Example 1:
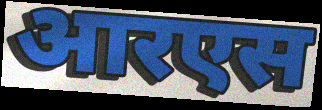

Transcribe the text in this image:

आरएस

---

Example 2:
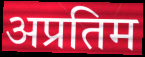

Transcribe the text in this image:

अप्रतिम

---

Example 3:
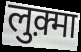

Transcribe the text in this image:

लुक़्मा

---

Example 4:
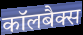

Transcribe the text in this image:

कॉलबैक्स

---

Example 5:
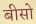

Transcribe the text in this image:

बीसो